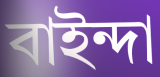
বাইন্দা